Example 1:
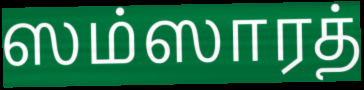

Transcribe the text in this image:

ஸம்ஸாரத்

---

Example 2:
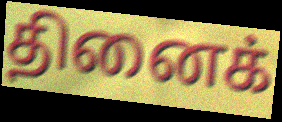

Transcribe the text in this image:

தினைக்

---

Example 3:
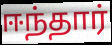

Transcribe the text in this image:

ஈந்தார்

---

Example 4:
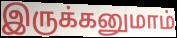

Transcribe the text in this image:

இருக்கனுமாம்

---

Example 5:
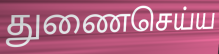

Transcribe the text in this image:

துணைசெய்ய